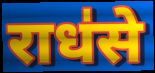
राध॑से